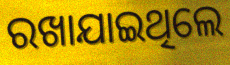
ରଖାଯାଇଥିଲେ